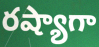
రష్యాగా